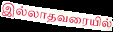
இல்லாதவரையில்